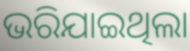
ଭରିଯାଇଥିଲା